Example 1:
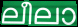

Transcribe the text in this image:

ലീലാ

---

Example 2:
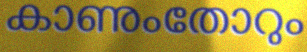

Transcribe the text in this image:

കാണുംതോറും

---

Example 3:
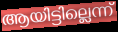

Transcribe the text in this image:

ആയിട്ടില്ലെന്ന്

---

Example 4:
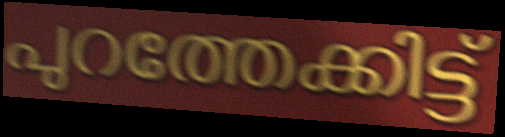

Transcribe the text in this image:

പുറത്തേക്കിട്ട്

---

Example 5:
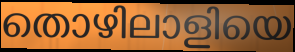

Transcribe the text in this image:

തൊഴിലാളിയെ